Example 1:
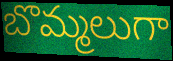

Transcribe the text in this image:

బొమ్మలుగా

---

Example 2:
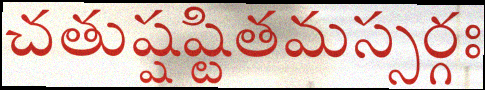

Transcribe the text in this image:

చతుష్షష్టితమస్సర్గః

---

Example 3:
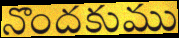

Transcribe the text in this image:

నొందకుము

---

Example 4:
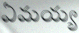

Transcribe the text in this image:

ఏమయ్య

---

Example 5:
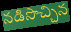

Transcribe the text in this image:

నడిసొచ్చిన